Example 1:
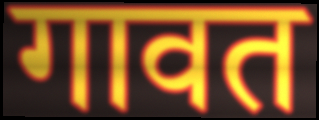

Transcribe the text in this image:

गावत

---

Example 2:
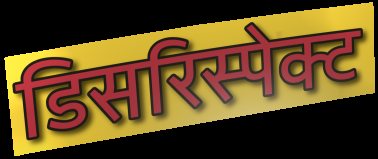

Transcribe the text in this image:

डिसरिस्पेक्ट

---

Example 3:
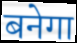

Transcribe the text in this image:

बनेगा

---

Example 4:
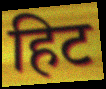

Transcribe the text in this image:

हिट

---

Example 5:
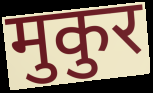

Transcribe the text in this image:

मुकुर